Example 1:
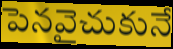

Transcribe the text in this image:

పెనవైచుకునే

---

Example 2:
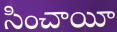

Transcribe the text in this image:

సించాయీ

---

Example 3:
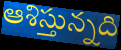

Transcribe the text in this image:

ఆశిస్తున్నది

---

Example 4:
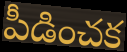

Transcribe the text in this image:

పీడించక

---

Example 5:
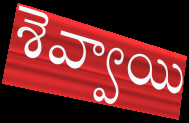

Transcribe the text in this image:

శెవ్వాయి